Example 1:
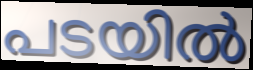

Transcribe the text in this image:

പടയിൽ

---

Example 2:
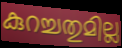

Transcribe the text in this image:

കുറച്ചതുമില്ല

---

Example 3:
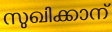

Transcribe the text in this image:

സുഖിക്കാന്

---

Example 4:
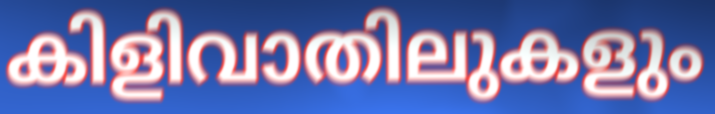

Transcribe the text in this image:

കിളിവാതിലുകളും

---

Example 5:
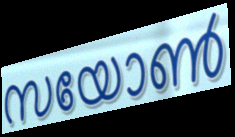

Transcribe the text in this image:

സയോൺ